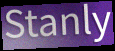
Stanly